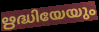
ഋദ്ധിയേയും